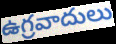
ఉగ్రవాదులు